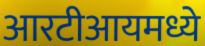
आरटीआयमध्ये